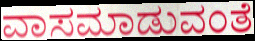
ವಾಸಮಾಡುವಂತೆ